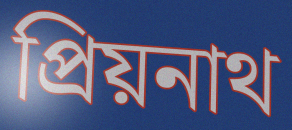
প্রিয়নাথ